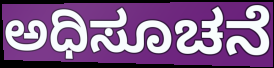
ಅಧಿಸೂಚನೆ